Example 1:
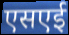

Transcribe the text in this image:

एसएई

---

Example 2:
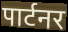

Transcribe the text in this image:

पार्टनर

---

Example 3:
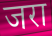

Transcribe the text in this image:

जरा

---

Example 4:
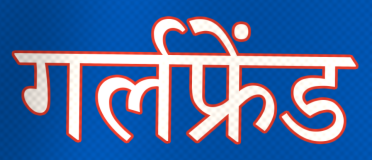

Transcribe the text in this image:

गर्लफ्रेंड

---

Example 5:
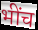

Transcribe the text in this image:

भींच